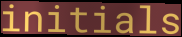
initials